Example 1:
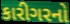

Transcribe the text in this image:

કારીગરનો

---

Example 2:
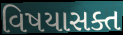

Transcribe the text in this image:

વિષયાસક્ત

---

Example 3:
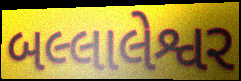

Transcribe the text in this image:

બલ્લાલેશ્વર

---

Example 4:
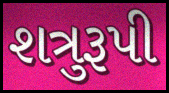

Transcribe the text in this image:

શત્રુરૂપી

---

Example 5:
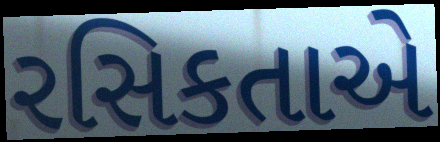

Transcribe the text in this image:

રસિકતાએ